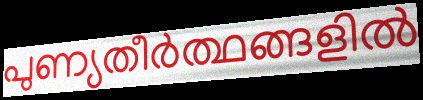
പുണ്യതീർത്ഥങ്ങളിൽ